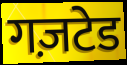
गज़टेड